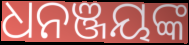
ଧନଞ୍ଜୟଙ୍କ